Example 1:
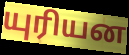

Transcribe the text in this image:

யுரியன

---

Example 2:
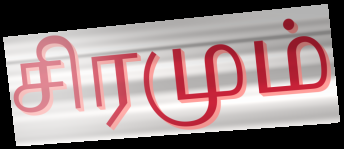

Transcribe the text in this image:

சிரமும்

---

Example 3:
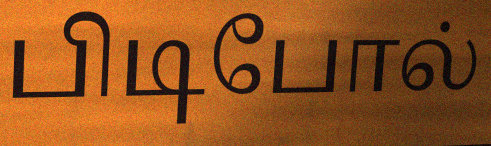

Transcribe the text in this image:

பிடிபோல்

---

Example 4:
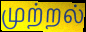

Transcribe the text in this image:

முற்றல்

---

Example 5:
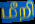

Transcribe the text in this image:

மீறி